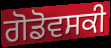
ਗੋਡੋਵਸਕੀ